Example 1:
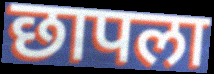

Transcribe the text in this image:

छापला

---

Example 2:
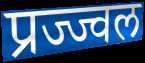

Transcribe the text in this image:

प्रज्ज्वल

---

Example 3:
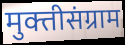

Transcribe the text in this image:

मुक्तीसंग्राम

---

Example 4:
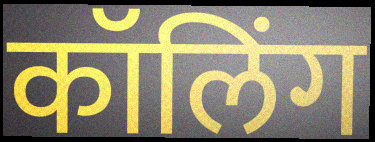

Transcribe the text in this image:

कॉलिंग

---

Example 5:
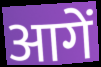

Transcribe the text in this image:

आगें